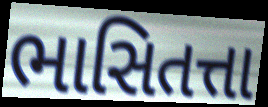
ભાસિતત્તા